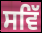
ਸਵਿੱ